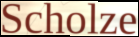
Scholze